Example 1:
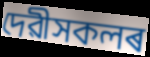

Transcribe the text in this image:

দেৱীসকলৰ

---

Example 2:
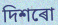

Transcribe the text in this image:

দিশৰো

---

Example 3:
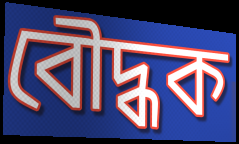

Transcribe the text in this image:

বৌদ্ধক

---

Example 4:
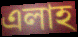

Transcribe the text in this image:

এলাহ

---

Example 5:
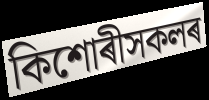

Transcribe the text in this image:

কিশোৰীসকলৰ